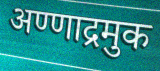
अण्णाद्रमुक